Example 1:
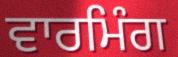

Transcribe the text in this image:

ਵਾਰਮਿੰਗ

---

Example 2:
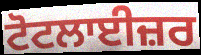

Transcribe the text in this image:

ਟੋਟਲਾਈਜ਼ਰ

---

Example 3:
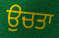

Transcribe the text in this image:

ਉਚਤਾ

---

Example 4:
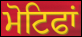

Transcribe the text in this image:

ਮੋਟਿਫਾਂ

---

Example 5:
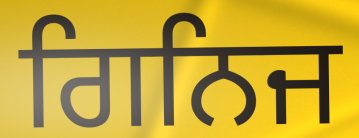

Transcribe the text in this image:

ਗਿਨਿਜ